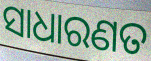
ସାଧାରଣତ